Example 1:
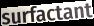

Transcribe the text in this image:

surfactant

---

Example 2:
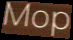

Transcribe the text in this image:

Mop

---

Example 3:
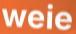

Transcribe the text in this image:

weie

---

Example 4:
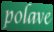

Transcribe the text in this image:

polave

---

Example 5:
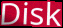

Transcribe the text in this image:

Disk